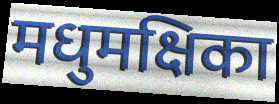
मधुमक्षिका